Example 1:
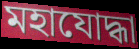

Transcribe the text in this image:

মহাযোদ্ধা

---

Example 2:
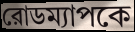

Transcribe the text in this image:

রোডম্যাপকে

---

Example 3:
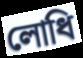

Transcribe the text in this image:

লোধি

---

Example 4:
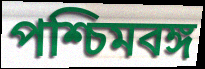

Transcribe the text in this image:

পশ্চিমবঙ্গ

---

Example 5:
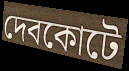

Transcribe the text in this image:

দেবকোটে